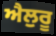
ਐਲੁਰੂ